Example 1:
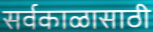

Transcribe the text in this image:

सर्वकाळासाठी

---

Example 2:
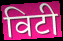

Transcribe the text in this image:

विटी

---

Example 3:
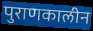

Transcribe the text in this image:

पुराणकालीन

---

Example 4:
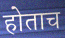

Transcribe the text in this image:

होताच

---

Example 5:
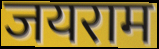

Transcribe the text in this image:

जयराम